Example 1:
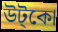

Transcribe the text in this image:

উট্কো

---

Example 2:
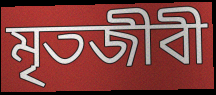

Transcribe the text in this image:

মৃতজীবী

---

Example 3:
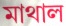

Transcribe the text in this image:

মাথাল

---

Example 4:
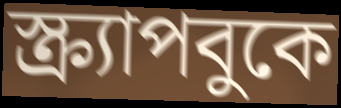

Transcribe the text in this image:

স্ক্র্যাপবুকে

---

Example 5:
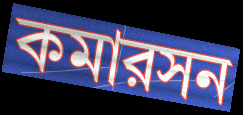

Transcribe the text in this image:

কমারসন